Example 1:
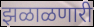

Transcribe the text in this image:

झळाळणारी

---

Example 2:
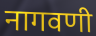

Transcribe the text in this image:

नागवणी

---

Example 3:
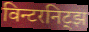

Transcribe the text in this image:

विन्टरनिट्झ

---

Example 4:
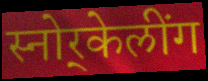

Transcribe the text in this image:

स्नोर्केलींग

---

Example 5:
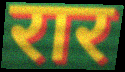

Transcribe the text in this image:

रार